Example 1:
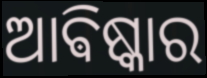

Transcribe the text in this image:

ଆଵିଷ୍କାର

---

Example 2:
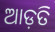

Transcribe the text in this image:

ଆଡ଼ତି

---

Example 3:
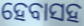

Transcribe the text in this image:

ହେବାସହ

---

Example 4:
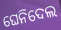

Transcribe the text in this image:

ଘେନିଦେଲ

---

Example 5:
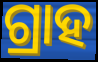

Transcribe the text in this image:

ଗ୍ରାହ